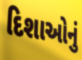
દિશાઓનું